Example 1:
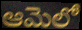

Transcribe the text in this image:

ఆమెలో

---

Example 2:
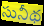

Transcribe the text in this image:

సునీథ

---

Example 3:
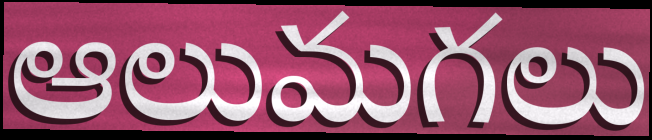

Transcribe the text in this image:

ఆలుమగలు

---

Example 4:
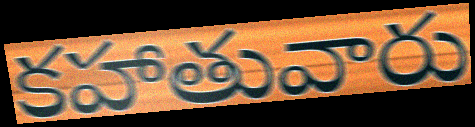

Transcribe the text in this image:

కహాతువారు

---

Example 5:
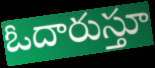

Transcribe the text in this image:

ఓదారుస్తూ